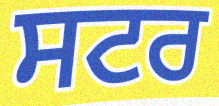
ਸਟਰ